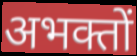
अभक्तों